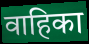
वाहिका